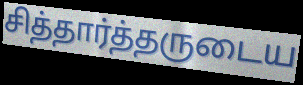
சித்தார்த்தருடைய